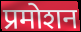
प्रमोशन